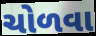
ચોળવા